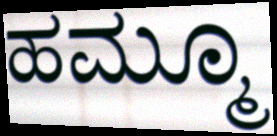
ಹಮ್ಮೂ